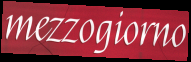
mezzogiorno